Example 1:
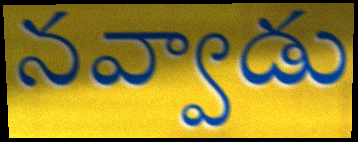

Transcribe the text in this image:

నవ్వాడు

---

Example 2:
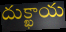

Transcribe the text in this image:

దుక్ఖాయ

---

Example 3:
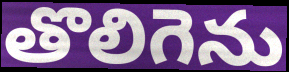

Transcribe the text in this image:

తొలిగెను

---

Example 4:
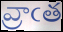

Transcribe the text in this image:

వ్రాఁత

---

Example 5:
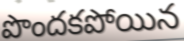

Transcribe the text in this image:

పొందకపోయిన